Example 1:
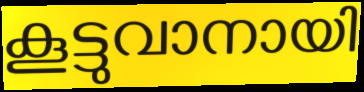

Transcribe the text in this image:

കൂട്ടുവാനായി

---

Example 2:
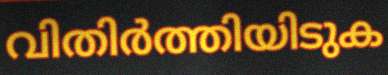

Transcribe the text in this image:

വിതിർത്തിയിടുക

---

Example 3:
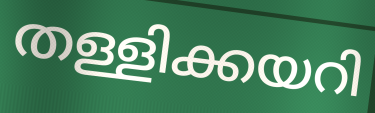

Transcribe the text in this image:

തള്ളിക്കയറി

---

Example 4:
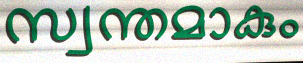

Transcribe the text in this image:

സ്വന്തമാകും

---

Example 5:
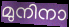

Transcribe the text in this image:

മുനിനാ